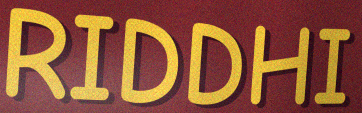
RIDDHI